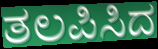
ತಲಪಿಸಿದ